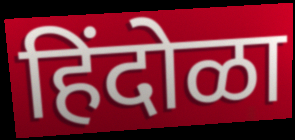
हिंदोळा